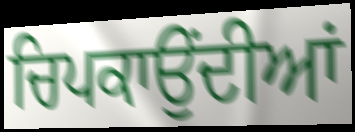
ਚਿਪਕਾਉਂਦੀਆਂ